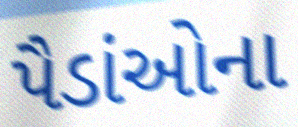
પૈડાંઓના